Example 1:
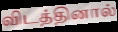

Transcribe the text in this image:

விடத்தினால்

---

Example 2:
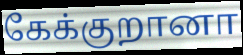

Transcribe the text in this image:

கேக்குறானா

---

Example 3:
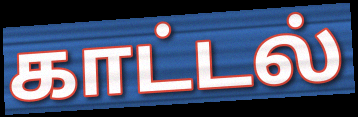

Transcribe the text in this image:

காட்டல்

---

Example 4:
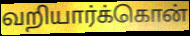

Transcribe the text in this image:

வறியார்க்கொன்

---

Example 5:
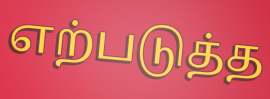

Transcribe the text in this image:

எற்படுத்த